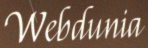
Webdunia